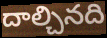
దాల్చినది